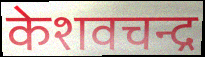
केशवचन्द्र